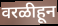
वरळीहून